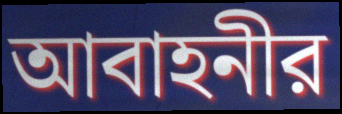
আবাহনীর